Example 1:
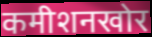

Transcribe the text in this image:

कमीशनखोर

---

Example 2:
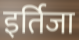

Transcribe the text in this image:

इर्तिजा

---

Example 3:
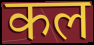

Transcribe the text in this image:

कल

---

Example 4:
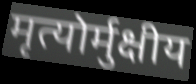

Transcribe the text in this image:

मृत्‍योर्मुक्षीय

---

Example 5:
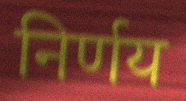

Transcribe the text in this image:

निर्णय